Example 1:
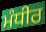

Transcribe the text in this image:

ਮੰਧੀਰ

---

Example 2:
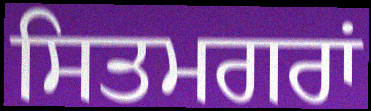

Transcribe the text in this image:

ਸਿਤਮਗਰਾਂ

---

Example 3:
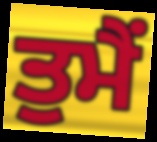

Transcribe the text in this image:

ਤੁਮੈਂ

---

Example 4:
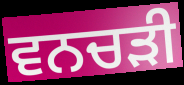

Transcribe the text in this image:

ਵਨਚੜੀ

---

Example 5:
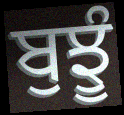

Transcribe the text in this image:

ਬੁਝੂੰ